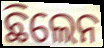
ଛିଲେନ